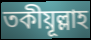
তকীয়ূল্লাহ